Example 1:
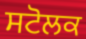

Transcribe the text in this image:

ਸਟੋਲਕ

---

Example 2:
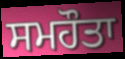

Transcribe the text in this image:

ਸਮਹੌਤਾ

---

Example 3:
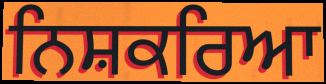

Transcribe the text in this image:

ਨਿਸ਼ਕਰਿਆ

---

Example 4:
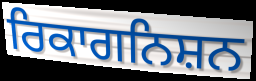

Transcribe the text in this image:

ਰਿਕਾਗਨਿਸ਼ਨ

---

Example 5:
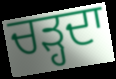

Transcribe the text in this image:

ਚੜ੍ਹਦਾ